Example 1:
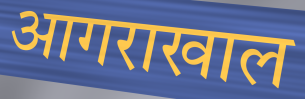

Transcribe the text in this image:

आगराखाल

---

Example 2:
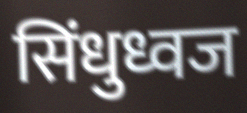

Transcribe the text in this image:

सिंधुध्वज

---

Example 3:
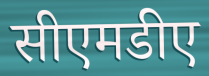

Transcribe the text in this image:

सीएमडीए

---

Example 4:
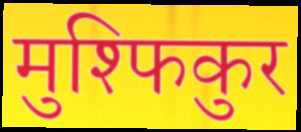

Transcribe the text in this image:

मुश्फिकुर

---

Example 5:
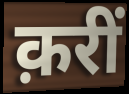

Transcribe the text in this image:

क़रीं